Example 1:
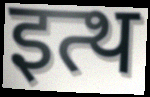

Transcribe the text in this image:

इत्थ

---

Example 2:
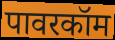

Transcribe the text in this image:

पावरकॉम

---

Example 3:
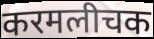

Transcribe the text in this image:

करमलीचक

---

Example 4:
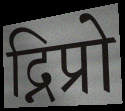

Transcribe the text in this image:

द्निप्रो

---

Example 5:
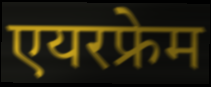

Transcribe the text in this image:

एयरफ्रेम